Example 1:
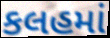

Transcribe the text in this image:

કલહમાં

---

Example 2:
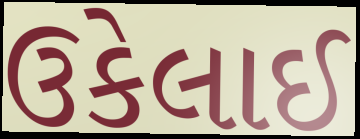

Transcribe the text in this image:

ઉકેલાઈ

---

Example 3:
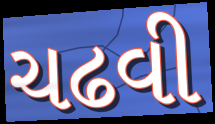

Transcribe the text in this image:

ચઢવી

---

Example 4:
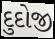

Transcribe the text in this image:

દુદોજી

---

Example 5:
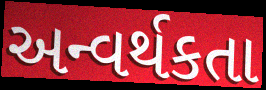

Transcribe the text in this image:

અન્વર્થકતા